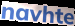
navhte